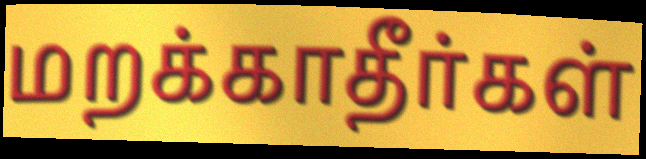
மறக்காதீர்கள்